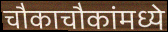
चौकाचौकांमध्ये